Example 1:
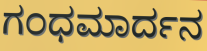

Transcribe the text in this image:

ಗಂಧಮಾರ್ದನ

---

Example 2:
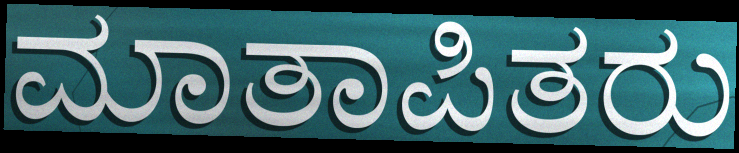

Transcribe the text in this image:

ಮಾತಾಪಿತರು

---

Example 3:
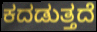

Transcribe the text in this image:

ಕದಡುತ್ತದೆ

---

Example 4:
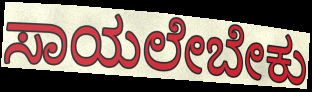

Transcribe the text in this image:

ಸಾಯಲೇಬೇಕು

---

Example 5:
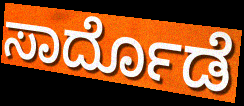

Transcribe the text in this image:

ಸಾರ್ದೊಡೆ